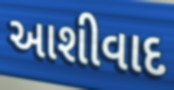
આશીવાદ